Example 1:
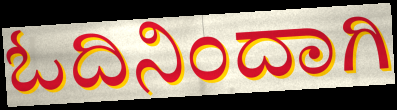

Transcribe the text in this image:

ಓದಿನಿಂದಾಗಿ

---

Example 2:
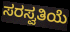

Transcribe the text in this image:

ಸರಸ್ವತಿಯೆ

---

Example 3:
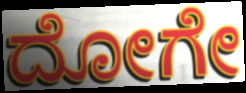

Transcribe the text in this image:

ದೋಗೇ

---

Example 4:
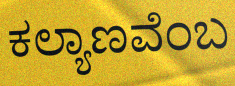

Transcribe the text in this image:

ಕಲ್ಯಾಣವೆಂಬ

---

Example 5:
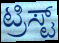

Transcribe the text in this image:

ಟ್ರಿಸ್ಟ್